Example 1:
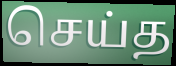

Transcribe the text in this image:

செய்த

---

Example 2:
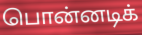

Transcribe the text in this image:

பொன்னடிக்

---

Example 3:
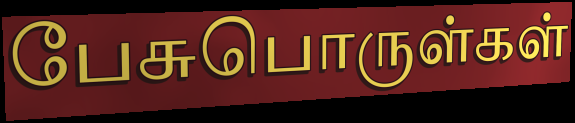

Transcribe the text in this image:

பேசுபொருள்கள்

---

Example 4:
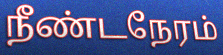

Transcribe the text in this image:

நீண்டநேரம்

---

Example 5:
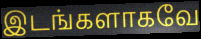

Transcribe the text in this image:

இடங்களாகவே